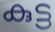
കുട്ട